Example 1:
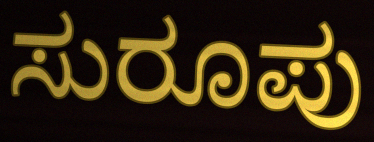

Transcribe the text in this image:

ಸುರೂಪು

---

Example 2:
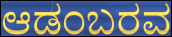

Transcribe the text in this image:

ಆಡಂಬರವ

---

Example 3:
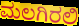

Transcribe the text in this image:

ಮಲಗಿರಲಿ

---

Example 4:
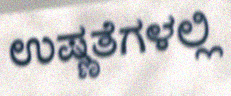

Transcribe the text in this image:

ಉಷ್ಣತೆಗಳಲ್ಲಿ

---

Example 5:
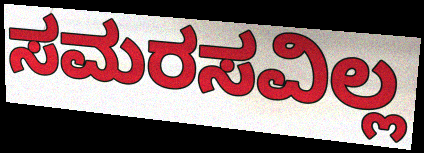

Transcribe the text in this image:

ಸಮರಸವಿಲ್ಲ